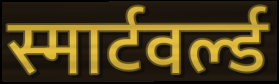
स्मार्टवर्ल्ड